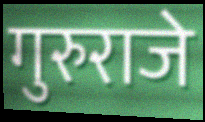
गुरुराजे